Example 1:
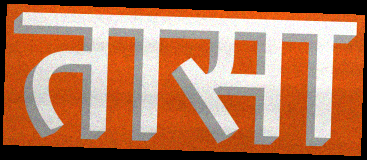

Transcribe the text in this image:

तासा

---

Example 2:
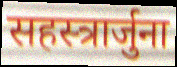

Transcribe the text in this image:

सहस्त्रार्जुना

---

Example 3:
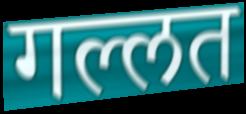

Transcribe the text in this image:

गल्लत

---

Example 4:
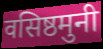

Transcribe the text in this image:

वसिष्ठमुनी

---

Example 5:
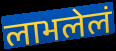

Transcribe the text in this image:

लाभलेलं